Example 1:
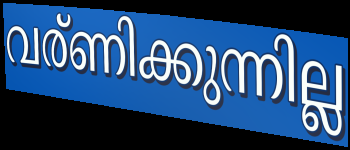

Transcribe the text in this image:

വര്ണിക്കുന്നില്ല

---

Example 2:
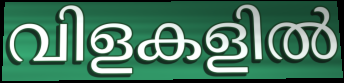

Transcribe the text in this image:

വിളകളിൽ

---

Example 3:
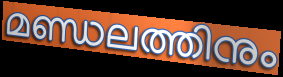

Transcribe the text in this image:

മണ്ഡലത്തിനും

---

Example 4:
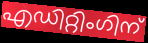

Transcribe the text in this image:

എഡിറ്റിംഗിന്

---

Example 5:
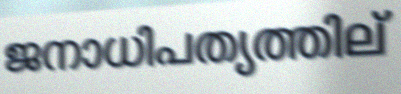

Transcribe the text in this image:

ജനാധിപത്യത്തില്